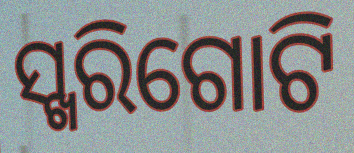
ସ୍ଖରିଗୋଟି